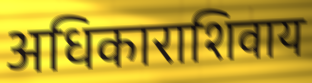
अधिकाराशिवाय